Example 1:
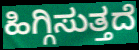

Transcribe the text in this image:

ಹಿಗ್ಗಿಸುತ್ತದೆ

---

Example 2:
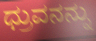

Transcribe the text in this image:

ಧ್ರುವನನ್ನು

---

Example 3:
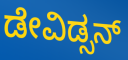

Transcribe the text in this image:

ಡೇವಿಡ್ಸನ್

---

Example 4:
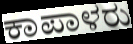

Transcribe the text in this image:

ಕಾಪಾಳರು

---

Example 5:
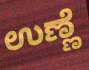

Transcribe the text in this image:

ಉಣ್ಣೆ